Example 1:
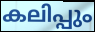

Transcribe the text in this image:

കലിപ്പും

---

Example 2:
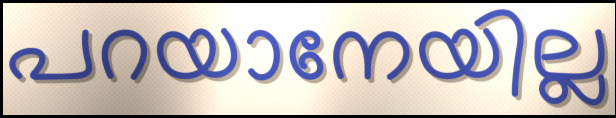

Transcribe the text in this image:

പറയാനേയില്ല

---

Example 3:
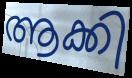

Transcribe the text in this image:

ആക്കി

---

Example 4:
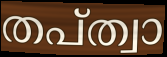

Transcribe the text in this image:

തപ്ത്വാ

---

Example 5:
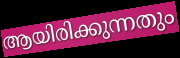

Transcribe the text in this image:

ആയിരിക്കുന്നതും